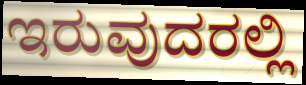
ಇರುವುದರಲ್ಲಿ